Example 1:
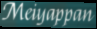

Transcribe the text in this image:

Meiyappan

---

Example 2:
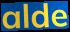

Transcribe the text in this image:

alde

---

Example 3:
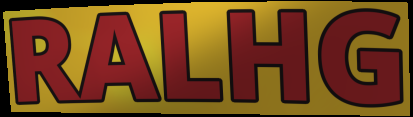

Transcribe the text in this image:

RALHG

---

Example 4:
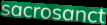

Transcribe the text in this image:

sacrosanct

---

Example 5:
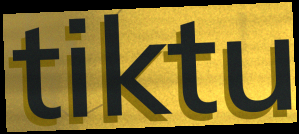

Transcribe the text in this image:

tiktu